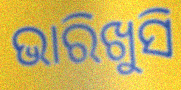
ଭାରିଖୁସି